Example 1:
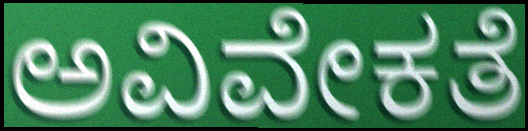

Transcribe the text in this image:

ಅವಿವೇಕತೆ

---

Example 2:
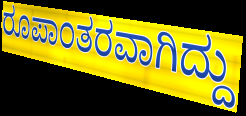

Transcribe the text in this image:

ರೂಪಾಂತರವಾಗಿದ್ದು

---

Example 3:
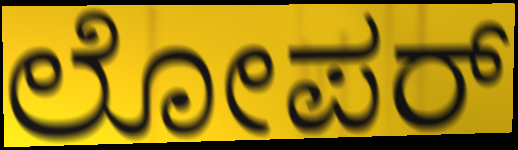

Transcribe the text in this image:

ಲೋಪರ್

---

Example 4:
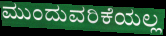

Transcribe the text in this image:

ಮುಂದುವರಿಕೆಯಲ್ಲ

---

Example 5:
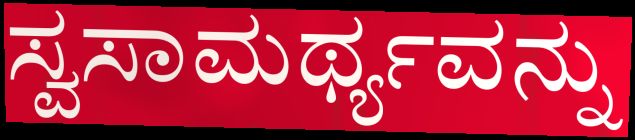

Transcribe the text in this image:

ಸ್ವಸಾಮರ್ಥ್ಯವನ್ನು